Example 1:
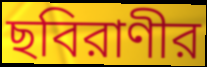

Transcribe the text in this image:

ছবিরাণীর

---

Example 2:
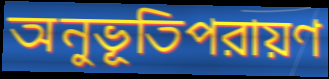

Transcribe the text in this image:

অনুভূতিপরায়ণ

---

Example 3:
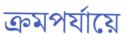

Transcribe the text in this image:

ক্রমপর্যায়ে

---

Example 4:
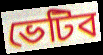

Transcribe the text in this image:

ভেটিব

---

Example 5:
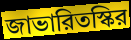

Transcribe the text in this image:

জাভারিতস্কির